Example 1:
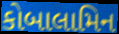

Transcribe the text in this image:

કોબાલામિન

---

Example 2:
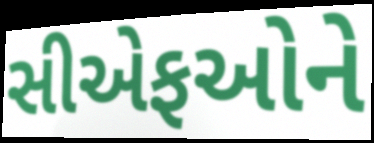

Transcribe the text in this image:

સીએફઓને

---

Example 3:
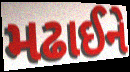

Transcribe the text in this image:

મઢાઈને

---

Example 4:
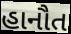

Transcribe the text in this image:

હાનૌત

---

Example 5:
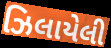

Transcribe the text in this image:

ઝિલાયેલી